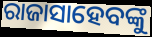
ରାଜାସାହେବଙ୍କୁ